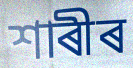
শাৰীৰ